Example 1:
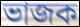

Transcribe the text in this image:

ভাজক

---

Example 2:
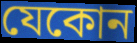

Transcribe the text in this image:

যেকোন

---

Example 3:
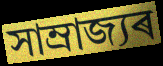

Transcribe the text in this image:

সাম্ৰাজ্যৰ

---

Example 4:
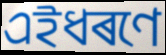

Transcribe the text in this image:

এইধৰণে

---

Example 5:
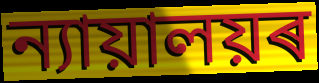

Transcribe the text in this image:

ন্যায়ালয়ৰ